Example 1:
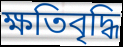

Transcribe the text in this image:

ক্ষতিবৃদ্ধি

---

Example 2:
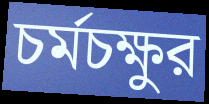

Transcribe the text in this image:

চর্মচক্ষুর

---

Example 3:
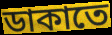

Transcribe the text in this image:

ডাকাতে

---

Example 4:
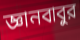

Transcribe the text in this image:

জ্ঞানবাবুর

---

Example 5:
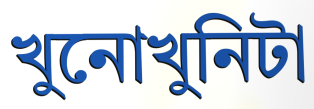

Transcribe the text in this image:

খুনোখুনিটা